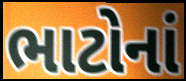
ભાટોનાં